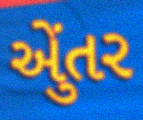
એુંતર